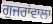
ਗੁਜਰਾਂਵਾਲਾ